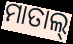
ମାତାଲ୍